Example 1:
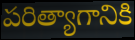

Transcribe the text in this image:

పరిత్యాగానికి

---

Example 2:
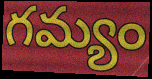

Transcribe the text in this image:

గమ్యం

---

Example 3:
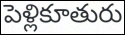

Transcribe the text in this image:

పెళ్లికూతురు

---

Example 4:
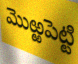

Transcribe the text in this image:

మొఱ్ఱపెట్టి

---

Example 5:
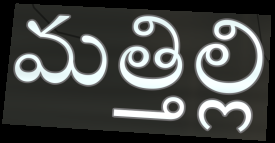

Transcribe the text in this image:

మత్తిల్లి